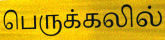
பெருக்கலில்